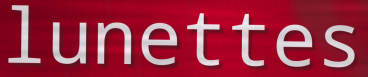
lunettes